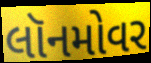
લૉનમોવર